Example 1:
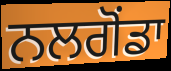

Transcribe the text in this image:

ਨਲਗੋਂਡਾ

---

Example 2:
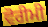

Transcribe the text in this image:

ਵੋਰੀਮੀ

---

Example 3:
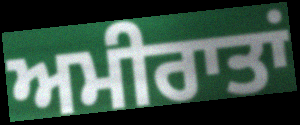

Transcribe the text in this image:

ਅਮੀਰਾਤਾਂ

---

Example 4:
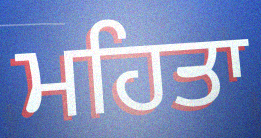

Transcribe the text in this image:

ਮਹਿਤਾ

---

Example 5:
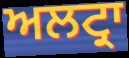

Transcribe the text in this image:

ਅਲਟ੍ਰਾ